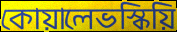
কোয়ালেভস্কিয়ি